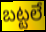
బట్టలే